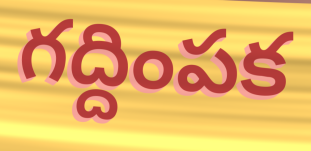
గద్దింపక